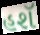
હશૅ